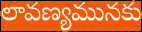
లావణ్యమునకు